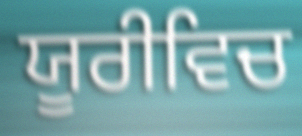
ਯੂਰੀਵਿਚ